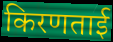
किरणताई